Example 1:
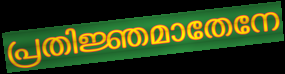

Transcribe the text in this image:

പ്രതിജ്ഞമാതേനേ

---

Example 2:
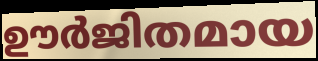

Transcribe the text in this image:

ഊർജിതമായ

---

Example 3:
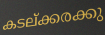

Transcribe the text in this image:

കടല്ക്കരക്കു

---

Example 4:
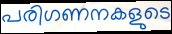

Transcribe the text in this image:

പരിഗണനകളുടെ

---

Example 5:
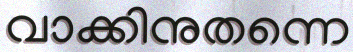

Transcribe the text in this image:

വാക്കിനുതന്നെ